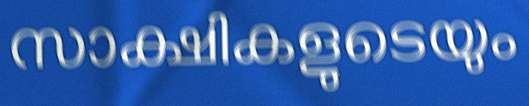
സാക്ഷികളുടെയും